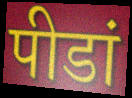
पीडां